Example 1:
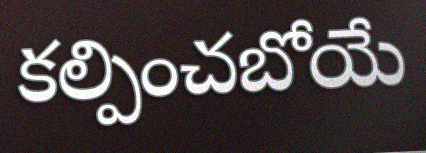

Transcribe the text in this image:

కల్పించబోయే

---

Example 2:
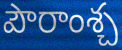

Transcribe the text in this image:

పౌరాంశ్చ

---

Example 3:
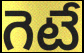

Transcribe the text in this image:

గెటే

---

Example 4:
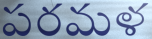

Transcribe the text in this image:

పరమళ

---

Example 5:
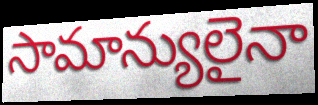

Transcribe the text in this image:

సామాన్యులైనా